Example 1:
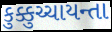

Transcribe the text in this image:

કુક્કુચ્ચાયન્તા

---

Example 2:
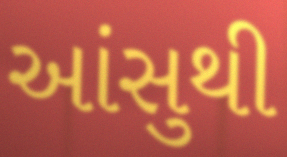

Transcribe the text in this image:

આંસુથી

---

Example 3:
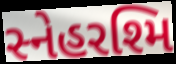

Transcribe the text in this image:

સ્નેહરશ્મિ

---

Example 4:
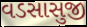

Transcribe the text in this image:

વડસાસુજી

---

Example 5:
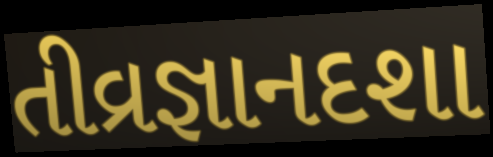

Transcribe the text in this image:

તીવ્રજ્ઞાનદશા